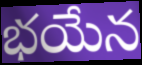
భయేన